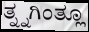
ತ್ನ್ನಗಿಂತ್ಲೂ